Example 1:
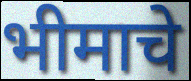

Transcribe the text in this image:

भीमाचे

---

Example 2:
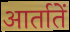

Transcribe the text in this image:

आर्तातें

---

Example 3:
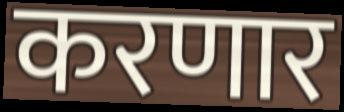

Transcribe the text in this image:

करणार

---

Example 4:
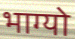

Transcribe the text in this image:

भाग्यो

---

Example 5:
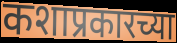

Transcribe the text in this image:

कशाप्रकारच्या